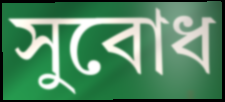
সুবোধ